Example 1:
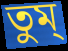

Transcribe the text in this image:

তুম্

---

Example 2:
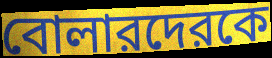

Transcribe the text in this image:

বোলারদেরকে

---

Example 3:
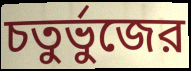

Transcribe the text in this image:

চতুর্ভুজের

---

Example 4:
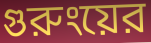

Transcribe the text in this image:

গুরুংয়ের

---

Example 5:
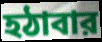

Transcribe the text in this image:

হঠাবার